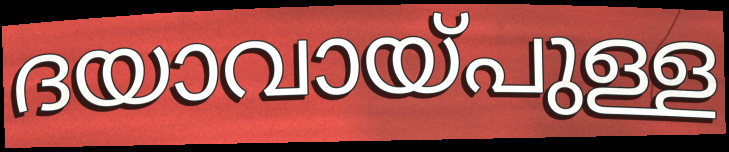
ദയാവായ്പുള്ള